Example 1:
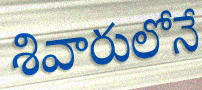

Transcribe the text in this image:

శివారులోనే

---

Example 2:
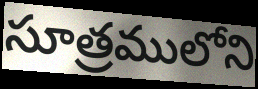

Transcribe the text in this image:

సూత్రములోని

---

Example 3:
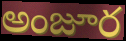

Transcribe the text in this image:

అంజూర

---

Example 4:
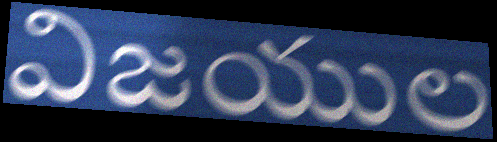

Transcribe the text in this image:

విజయుల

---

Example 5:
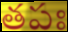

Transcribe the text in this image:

తపః